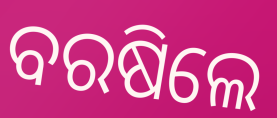
ବରଷିଲେ